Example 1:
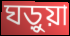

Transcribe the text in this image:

ঘড়ুয়া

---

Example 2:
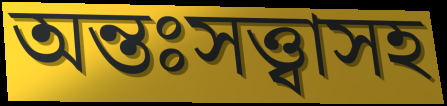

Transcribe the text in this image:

অন্তঃসত্ত্বাসহ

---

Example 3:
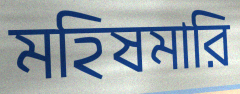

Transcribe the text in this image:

মহিষমারি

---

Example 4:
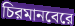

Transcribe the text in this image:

চিরমানবেরে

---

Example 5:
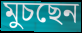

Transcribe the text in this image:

মুচছেন